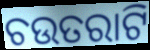
ଚଉତରାଟି